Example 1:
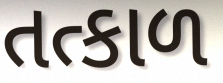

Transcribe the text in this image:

તત્કાળ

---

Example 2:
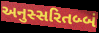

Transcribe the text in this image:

અનુસ્સરિતબ્બં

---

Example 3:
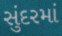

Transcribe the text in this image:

સુંદરમાં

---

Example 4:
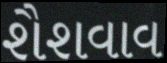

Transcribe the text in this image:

શૈશવાવ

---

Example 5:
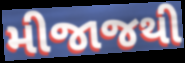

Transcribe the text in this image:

મીજાજથી